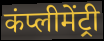
कंप्लीमेंट्री